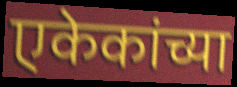
एकेकांच्या